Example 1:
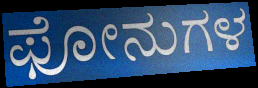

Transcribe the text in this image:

ಫೋನುಗಳ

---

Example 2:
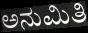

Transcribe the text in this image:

ಅನುಮಿತಿ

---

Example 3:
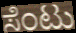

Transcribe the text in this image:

ಸೆಂಟು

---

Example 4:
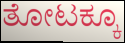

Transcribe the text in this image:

ತೋಟಕ್ಕೂ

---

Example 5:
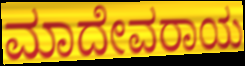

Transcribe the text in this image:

ಮಾದೇವರಾಯ